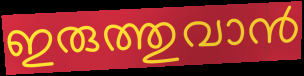
ഇരുത്തുവാൻ